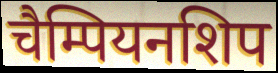
चैम्पियनशिप